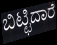
ಬಿಟ್ಟಿದಾರೆ